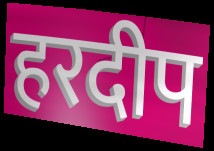
हरदीप